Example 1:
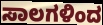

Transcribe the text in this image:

ಸಾಲಗಳಿಂದ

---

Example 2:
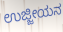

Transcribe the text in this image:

ಉಜ್ಜೀಯನ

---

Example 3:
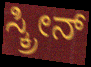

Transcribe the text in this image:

ಸ್ಕ್ರೀನ್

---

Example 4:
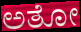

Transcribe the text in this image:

ಅತೋ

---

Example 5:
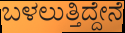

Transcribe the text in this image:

ಬಳಲುತ್ತಿದ್ದೇನೆ